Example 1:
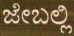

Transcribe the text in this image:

ಜೇಬಲ್ಲಿ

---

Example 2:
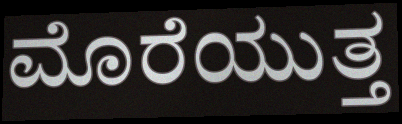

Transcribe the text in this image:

ಮೊರೆಯುತ್ತ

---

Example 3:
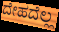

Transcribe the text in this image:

ದೇಹದೆಲ್ಲ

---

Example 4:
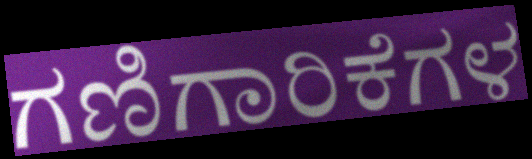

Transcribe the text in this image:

ಗಣಿಗಾರಿಕೆಗಳ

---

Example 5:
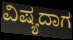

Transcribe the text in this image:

ವಿಷ್ಯದಾಗ